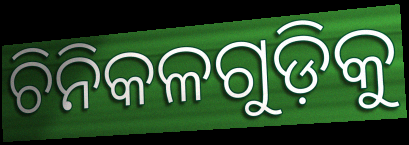
ଚିନିକଳଗୁଡ଼ିକୁ